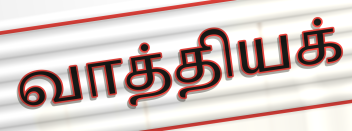
வாத்தியக்